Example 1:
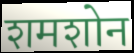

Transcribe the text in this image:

शमशोन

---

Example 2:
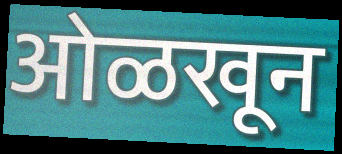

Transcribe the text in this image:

ओळखून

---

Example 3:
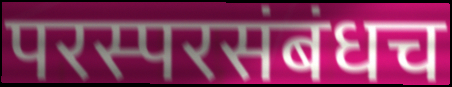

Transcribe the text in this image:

परस्परसंबंधच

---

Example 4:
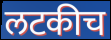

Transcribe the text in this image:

लटकीच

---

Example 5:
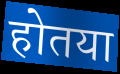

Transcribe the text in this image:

होतया